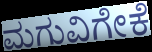
ಮಗುವಿಗೇಕೆ